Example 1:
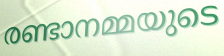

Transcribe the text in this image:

രണ്ടാനമ്മയുടെ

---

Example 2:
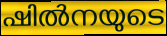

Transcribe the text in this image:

ഷിൽനയുടെ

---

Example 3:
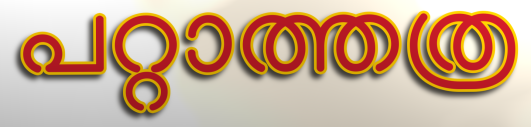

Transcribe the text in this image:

പറ്റാത്തത്ര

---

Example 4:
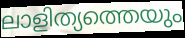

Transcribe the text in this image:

ലാളിത്യത്തെയും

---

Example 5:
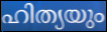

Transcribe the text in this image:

ഹിത്യയും